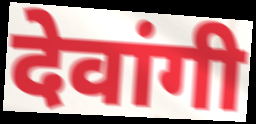
देवांगी